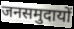
जनसमुदायों